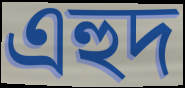
এহুদ